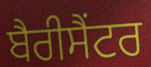
ਬੈਰੀਸੈਂਟਰ